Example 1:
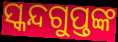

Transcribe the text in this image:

ସ୍କନ୍ଦଗୁପ୍ତଙ୍କ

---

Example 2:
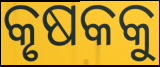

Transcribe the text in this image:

କୃଷକକୁ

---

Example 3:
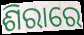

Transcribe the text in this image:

ଶିରାରେ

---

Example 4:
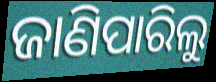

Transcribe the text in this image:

ଜାଣିପାରିଲୁ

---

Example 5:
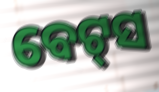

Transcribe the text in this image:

ବେଟ୍‌ସ